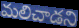
మలిచాడని